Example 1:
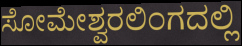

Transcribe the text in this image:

ಸೋಮೇಶ್ವರಲಿಂಗದಲ್ಲಿ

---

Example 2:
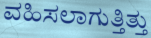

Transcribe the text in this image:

ವಹಿಸಲಾಗುತ್ತಿತ್ತು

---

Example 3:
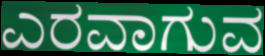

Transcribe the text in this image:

ಎರವಾಗುವ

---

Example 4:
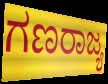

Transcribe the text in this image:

ಗಣರಾಜ್ಯ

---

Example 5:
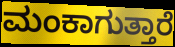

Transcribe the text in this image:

ಮಂಕಾಗುತ್ತಾರೆ